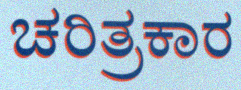
ಚರಿತ್ರಕಾರ